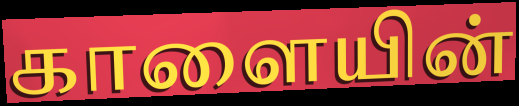
காளையின்